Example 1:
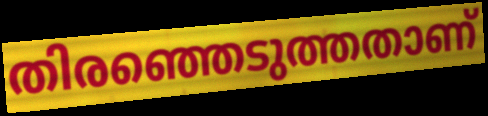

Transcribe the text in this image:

തിരഞ്ഞെടുത്തതാണ്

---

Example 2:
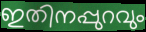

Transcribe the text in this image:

ഇതിനപ്പുറവും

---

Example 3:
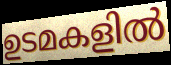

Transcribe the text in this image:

ഉടമകളിൽ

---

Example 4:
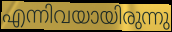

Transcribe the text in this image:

എന്നിവയായിരുന്നു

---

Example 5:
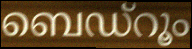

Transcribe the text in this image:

ബെഡ്റൂം